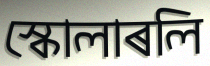
স্কোলাৰলি